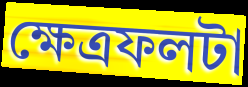
ক্ষেত্রফলটা